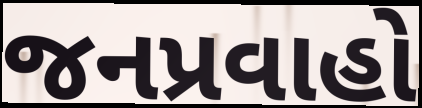
જનપ્રવાહો